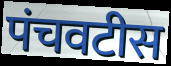
पंचवटीस